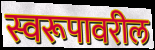
स्वरूपावरील